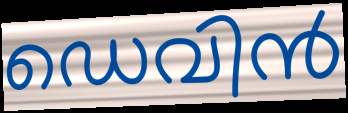
ഡെവിൻ